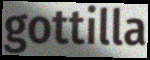
gottilla